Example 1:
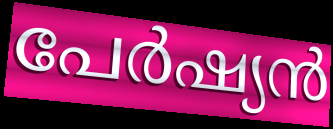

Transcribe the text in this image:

പേർഷ്യൻ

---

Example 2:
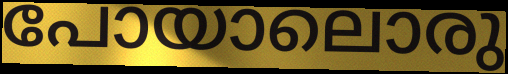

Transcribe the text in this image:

പോയാലൊരു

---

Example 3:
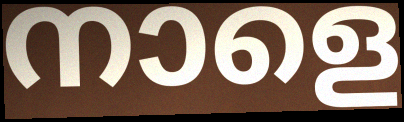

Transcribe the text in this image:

നാളെ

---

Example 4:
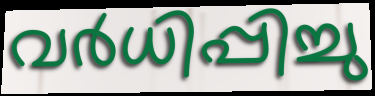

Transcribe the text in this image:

വർധിപ്പിച്ചു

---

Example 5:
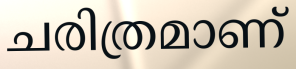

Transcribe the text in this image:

ചരിത്രമാണ്